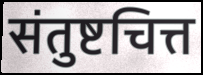
संतुष्टचित्त